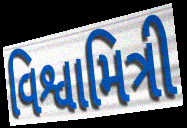
વિશ્વામિત્રી